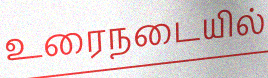
உரைநடையில்